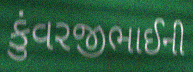
કુંવરજીભાઈની